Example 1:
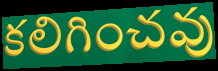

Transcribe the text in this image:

కలిగించవు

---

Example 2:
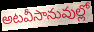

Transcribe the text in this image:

అటవీసానువుల్లో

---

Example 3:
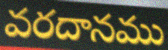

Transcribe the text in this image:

వరదానము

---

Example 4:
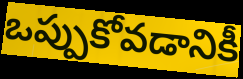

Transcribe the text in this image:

ఒప్పుకోవడానికీ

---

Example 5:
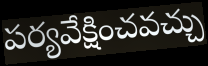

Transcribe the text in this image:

పర్యవేక్షించవచ్చు